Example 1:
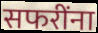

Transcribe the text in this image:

सफरींना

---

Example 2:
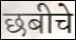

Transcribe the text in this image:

छबीचे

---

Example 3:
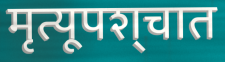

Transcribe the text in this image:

मृत्यूपश्चात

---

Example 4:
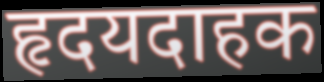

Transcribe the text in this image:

हृदयदाहक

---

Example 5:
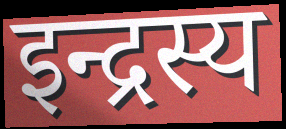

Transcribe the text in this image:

इन्द्रस्य